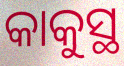
କାକୁସ୍ଥ